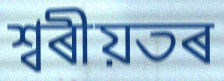
শ্বৰীয়তৰ